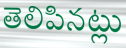
తెలిపినట్లు